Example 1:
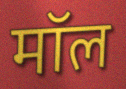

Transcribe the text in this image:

मॉल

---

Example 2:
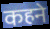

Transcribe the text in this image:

कहने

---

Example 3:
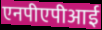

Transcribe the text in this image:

एनपीएपीआई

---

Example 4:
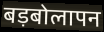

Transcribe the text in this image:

बड़बोलापन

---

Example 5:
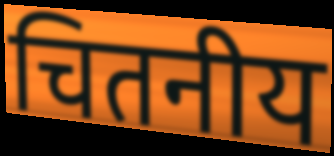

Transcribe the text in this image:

चितनीय